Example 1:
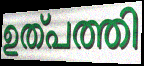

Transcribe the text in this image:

ഉത്പത്തി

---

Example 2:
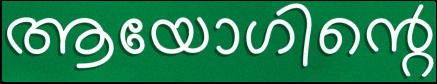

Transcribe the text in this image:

ആയോഗിന്റെ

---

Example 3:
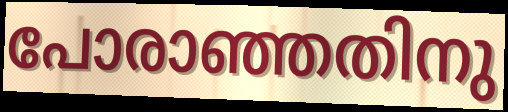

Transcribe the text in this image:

പോരാഞ്ഞതിനു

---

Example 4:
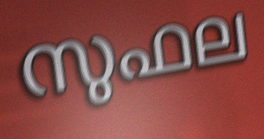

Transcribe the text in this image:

സുഫല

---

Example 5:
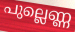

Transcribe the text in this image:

പുല്ലെണ്ണ